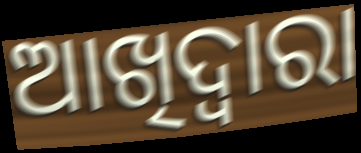
ଆଖିଦ୍ୱାରା